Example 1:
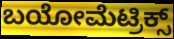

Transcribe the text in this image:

ಬಯೋಮೆಟ್ರಿಕ್ಸ್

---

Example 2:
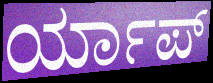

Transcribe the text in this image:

ರ್ಯಾಪ್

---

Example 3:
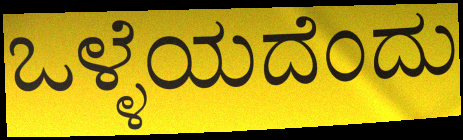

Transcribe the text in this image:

ಒಳ್ಳೆಯದೆಂದು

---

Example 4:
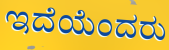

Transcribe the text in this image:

ಇದೆಯೆಂದರು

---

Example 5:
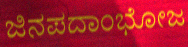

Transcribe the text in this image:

ಜಿನಪದಾಂಭೋಜ